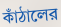
কাঁঠালের